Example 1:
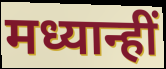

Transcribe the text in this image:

मध्यान्हीं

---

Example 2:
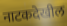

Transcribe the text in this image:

नाटकदेखील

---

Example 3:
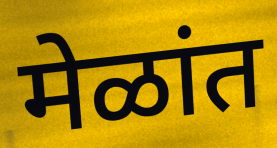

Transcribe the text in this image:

मेळांत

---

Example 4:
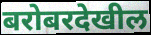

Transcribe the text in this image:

बरोबरदेखील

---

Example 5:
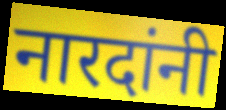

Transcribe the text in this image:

नारदांनी